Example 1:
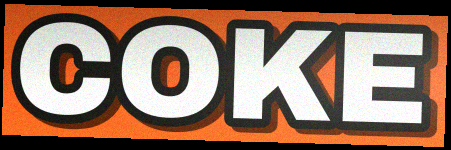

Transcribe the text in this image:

COKE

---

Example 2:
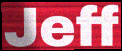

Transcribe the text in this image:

Jeff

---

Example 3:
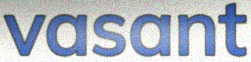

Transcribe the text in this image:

vasant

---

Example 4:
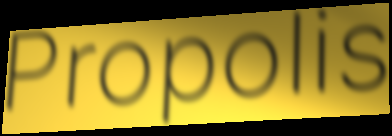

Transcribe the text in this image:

Propolis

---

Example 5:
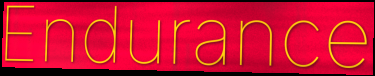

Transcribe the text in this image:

Endurance